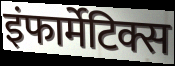
इंफार्मेटिक्स